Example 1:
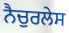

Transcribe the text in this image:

ਨੈਚੁਰਲੇਸ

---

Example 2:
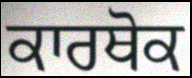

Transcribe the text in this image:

ਕਾਰਥੋਕ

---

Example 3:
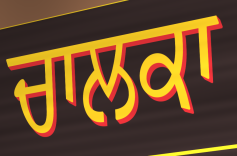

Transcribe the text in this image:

ਚਾਲਕਾ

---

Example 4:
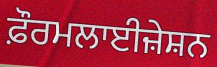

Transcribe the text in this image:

ਫ਼ੌਰਮਲਾਈਜ਼ੇਸ਼ਨ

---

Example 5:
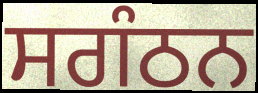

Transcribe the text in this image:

ਸਗੰਠਨ